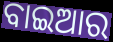
ବାଇଆର